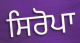
ਸਿਰੋਪਾ